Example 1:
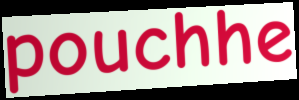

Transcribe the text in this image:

pouchhe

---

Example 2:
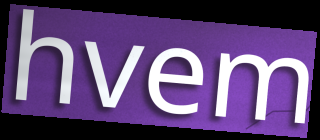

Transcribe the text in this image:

hvem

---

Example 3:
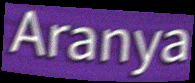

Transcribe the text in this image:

Aranya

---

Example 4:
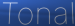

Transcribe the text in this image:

Tonal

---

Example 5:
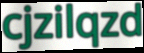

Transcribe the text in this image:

cjzilqzd